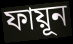
ফায়ূন